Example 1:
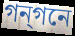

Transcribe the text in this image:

গন্গনে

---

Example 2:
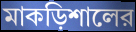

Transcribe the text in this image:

মাকড়িশালের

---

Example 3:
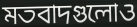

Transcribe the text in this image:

মতবাদগুলোও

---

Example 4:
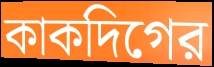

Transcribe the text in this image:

কাকদিগের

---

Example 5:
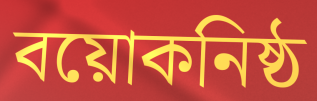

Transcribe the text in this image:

বয়োকনিষ্ঠ